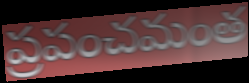
ప్రపంచమంత